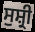
ਸੁਸ਼੍ਰੀ